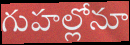
గుహల్లోనూ